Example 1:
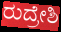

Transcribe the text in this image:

ರುದ್ರೇಶಿ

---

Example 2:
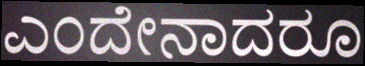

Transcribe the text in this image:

ಎಂದೇನಾದರೂ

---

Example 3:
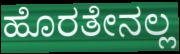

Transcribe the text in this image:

ಹೊರತೇನಲ್ಲ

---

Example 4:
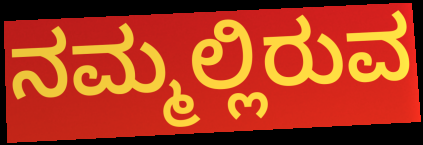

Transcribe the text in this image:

ನಮ್ಮಲ್ಲಿರುವ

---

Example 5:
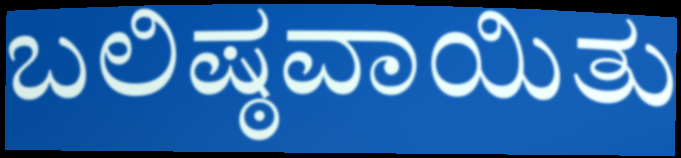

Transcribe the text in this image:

ಬಲಿಷ್ಠವಾಯಿತು